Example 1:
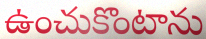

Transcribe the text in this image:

ఉంచుకొంటాను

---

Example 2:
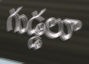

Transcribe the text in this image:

గుడ్డలూ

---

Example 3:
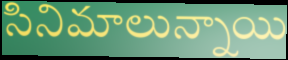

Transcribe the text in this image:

సినిమాలున్నాయి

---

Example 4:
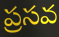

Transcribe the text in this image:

ప్రసవ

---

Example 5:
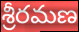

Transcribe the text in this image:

శ్రీరమణ